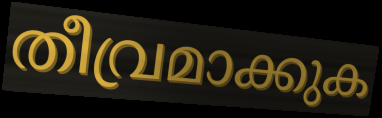
തീവ്രമാക്കുക